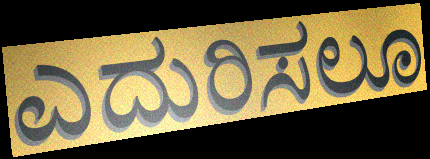
ಎದುರಿಸಲೂ